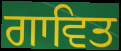
ਗਾਵਿਤ